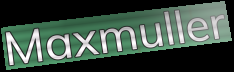
Maxmuller